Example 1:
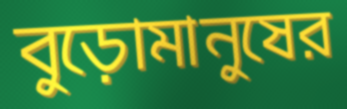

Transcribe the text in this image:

বুড়োমানুষের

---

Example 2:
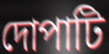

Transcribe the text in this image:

দোপাটি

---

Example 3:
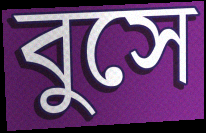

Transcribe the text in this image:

বুসে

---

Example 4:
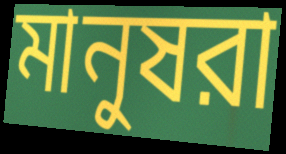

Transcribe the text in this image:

মানুষরা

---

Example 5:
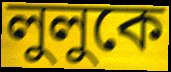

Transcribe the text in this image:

লুলুকে